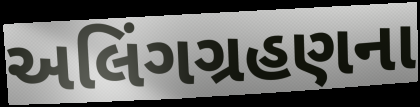
અલિંગગ્રહણના